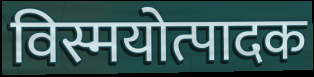
विस्मयोत्पादक